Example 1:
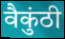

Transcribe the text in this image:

वैकुंठी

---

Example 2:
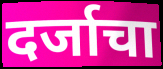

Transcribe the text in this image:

दर्जाचा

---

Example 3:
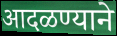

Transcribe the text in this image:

आदळण्याने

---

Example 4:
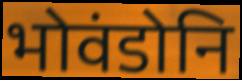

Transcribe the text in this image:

भोवंडोनि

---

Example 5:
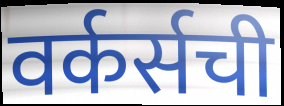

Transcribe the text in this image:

वर्कर्सची